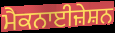
ਮੈਕਨਾਈਜ਼ੇਸ਼ਨ